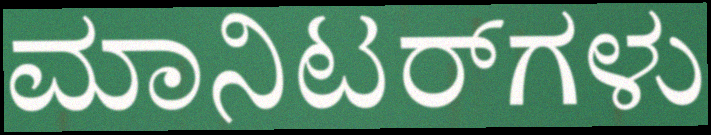
ಮಾನಿಟರ್‌ಗಳು